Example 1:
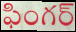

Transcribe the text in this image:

ఫింగర్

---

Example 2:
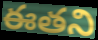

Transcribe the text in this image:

ఈతని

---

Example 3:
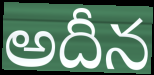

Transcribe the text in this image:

అదీన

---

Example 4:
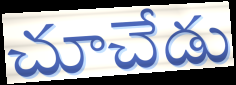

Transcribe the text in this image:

చూచేడు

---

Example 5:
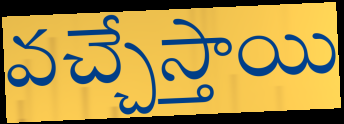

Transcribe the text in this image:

వచ్చేస్తాయి